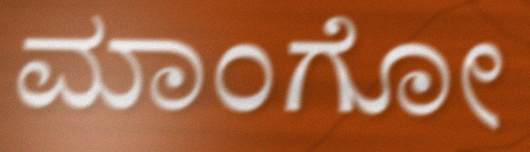
ಮಾಂಗೋ